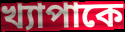
খ্যাপাকে